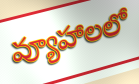
వ్యూహాలలో